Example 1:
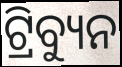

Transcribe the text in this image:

ଟ୍ରିବ୍ୟୁନ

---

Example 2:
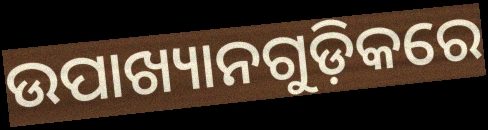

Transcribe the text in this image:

ଉପାଖ୍ୟାନଗୁଡ଼ିକରେ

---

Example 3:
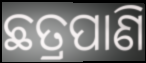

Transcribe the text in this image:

ଛତ୍ରପାଣି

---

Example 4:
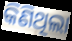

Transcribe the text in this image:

କିଣିଥିଲା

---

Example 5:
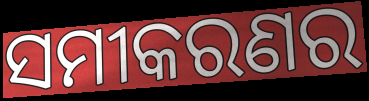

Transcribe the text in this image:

ସମୀକରଣର